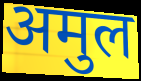
अमुल